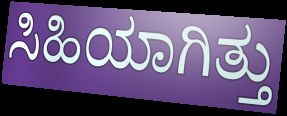
ಸಿಹಿಯಾಗಿತ್ತು